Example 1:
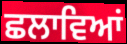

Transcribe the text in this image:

ਛਲਾਵਿਆਂ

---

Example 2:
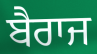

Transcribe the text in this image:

ਬੈਰਾਜ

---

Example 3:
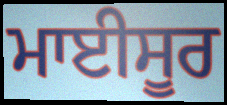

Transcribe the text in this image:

ਮਾਈਸੂਰ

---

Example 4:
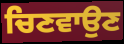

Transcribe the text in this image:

ਚਿਣਵਾਉਣ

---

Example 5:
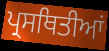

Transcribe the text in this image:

ਪ੍ਰਸਥਿਤੀਆਂ